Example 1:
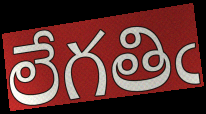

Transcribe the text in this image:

లేగతిఁ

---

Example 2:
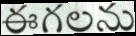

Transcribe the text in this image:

ఈగలను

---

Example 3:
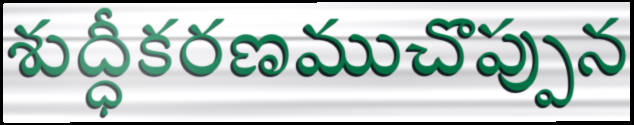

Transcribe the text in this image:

శుద్ధీకరణముచొప్పున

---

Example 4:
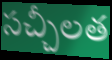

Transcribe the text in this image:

సచ్చీలత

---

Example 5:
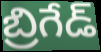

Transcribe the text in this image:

బ్రిగేడ్